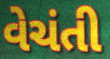
વેચંતી